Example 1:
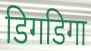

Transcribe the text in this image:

डिगडिगा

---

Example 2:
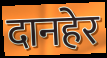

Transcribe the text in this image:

दानहेर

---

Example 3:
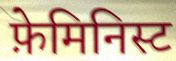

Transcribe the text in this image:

फ़ेमिनिस्ट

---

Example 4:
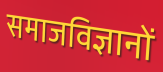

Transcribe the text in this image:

समाजविज्ञानों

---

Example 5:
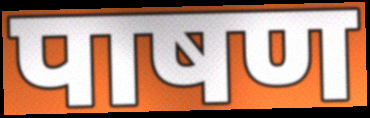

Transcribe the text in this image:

पाषण